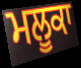
ਮਲੂਕਾ